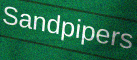
Sandpipers